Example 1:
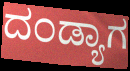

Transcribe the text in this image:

ದಂಡ್ಯಾಗ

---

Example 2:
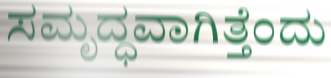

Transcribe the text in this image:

ಸಮೃದ್ಧವಾಗಿತ್ತೆಂದು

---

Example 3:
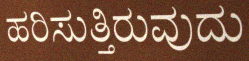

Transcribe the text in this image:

ಹರಿಸುತ್ತಿರುವುದು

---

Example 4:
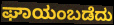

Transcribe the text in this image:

ಘಾಯಂಬಡೆದು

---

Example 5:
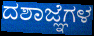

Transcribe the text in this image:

ದಶಾಜ್ಞೆಗಳ